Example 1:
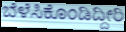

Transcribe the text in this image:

ಬೆಳೆಸಿಕೊಂಡಿದ್ದೀರಿ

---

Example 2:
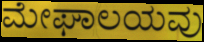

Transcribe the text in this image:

ಮೇಘಾಲಯವು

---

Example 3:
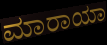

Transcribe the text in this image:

ಮಾರಾಯಾ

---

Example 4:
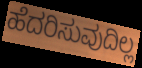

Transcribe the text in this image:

ಹೆದರಿಸುವುದಿಲ್ಲ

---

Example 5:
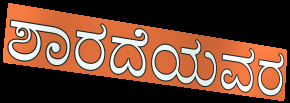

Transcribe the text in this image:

ಶಾರದೆಯವರ